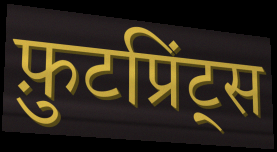
फ़ुटप्रिंट्स